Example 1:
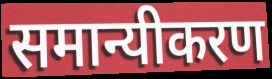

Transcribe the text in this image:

समान्यीकरण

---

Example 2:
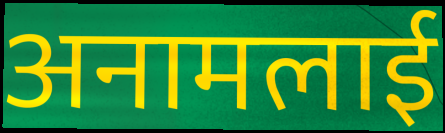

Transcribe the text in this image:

अनामलाई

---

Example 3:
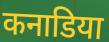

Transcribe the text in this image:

कनाडिया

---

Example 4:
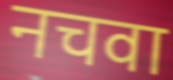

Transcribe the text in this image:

नचवा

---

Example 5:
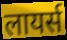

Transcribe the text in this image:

लायर्स